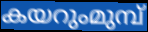
കയറുംമുമ്പ്